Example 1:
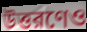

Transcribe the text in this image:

উত্তরণেও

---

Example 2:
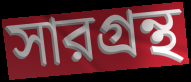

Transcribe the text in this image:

সারগ্রন্থ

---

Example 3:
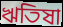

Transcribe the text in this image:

ঋতিষা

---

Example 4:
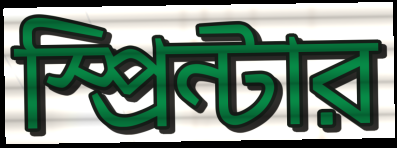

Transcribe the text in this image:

স্প্রিন্টার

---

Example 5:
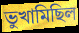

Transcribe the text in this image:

ভুখামিছিল